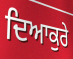
ਦਿਆਕੁਰੇ